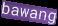
bawang